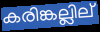
കരിങ്കല്ലില്